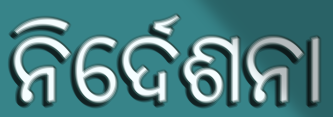
ନିର୍ଦେଶନା